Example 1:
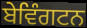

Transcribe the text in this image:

ਬੇਵਿੰਗਟਨ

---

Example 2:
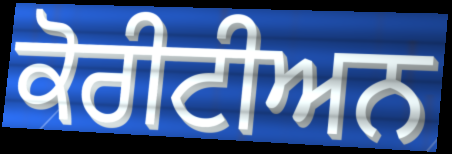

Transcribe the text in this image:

ਕੋਰੀਟੀਅਨ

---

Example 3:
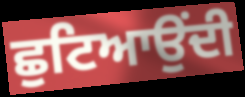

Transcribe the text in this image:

ਛੁਟਿਆਉਂਦੀ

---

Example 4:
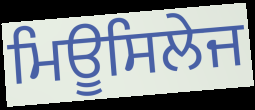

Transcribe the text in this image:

ਮਿਊਸਿਲੇਜ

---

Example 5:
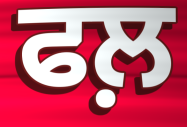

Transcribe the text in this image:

ਫਲ਼